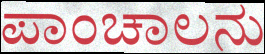
ಪಾಂಚಾಲನು